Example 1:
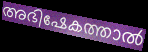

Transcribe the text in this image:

അഭിഷേകത്താൽ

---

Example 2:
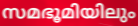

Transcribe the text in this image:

സമഭൂമിയിലും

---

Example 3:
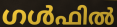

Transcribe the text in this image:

ഗൾഫിൽ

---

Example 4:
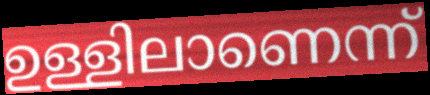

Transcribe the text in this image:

ഉള്ളിലാണെന്ന്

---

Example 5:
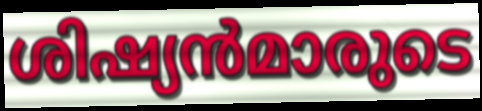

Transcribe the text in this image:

ശിഷ്യൻമാരുടെ